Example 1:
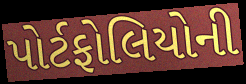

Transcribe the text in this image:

પોર્ટફોલિયોની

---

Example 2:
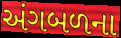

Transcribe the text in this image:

અંગબળના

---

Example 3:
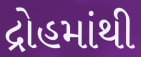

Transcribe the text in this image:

દ્રોહમાંથી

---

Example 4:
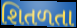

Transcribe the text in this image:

શિતળતા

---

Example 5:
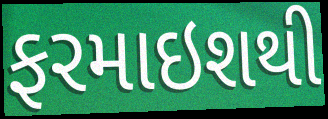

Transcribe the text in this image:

ફરમાઇશથી